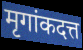
मृगांकदत्त